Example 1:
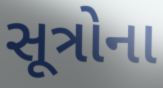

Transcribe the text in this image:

સૂત્રોના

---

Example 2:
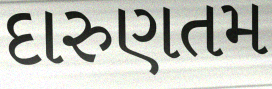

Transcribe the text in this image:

દારુણતમ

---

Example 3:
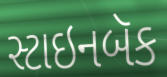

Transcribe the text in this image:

સ્ટાઇનબૅક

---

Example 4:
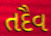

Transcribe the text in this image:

તદૈવ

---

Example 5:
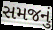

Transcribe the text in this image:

સમજનું